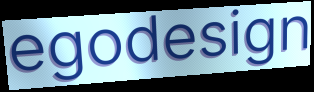
egodesign